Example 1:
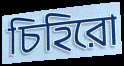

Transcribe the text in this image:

চিহিরো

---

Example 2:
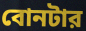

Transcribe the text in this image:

বোনটার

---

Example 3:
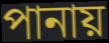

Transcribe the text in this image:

পানায়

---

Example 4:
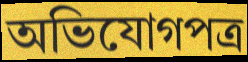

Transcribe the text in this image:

অভিযোগপত্র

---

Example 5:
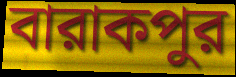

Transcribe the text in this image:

বারাকপুর